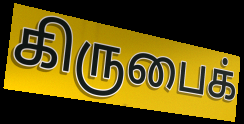
கிருபைக்